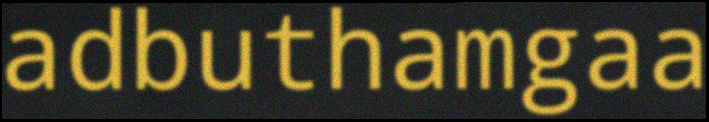
adbuthamgaa